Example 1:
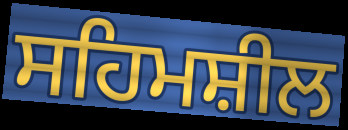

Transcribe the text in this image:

ਸਹਿਮਸ਼ੀਲ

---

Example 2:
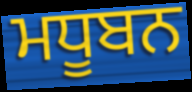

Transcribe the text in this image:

ਮਧੂਬਨ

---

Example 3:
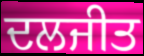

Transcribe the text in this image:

ਦਲਜੀਤ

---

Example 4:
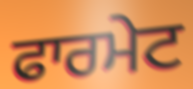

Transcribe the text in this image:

ਫਾਰਮੇਟ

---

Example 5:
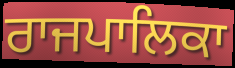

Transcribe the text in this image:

ਰਾਜਪਾਲਿਕਾ